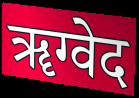
ॠग्वेद